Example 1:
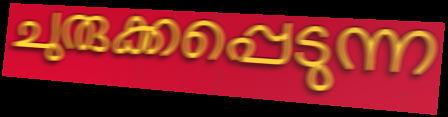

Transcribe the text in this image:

ചുരുക്കപ്പെടുന്ന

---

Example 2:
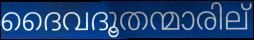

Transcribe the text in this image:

ദൈവദൂതന്മാരില്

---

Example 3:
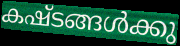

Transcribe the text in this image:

കഷ്ടങ്ങൾക്കു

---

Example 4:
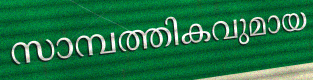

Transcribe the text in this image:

സാമ്പത്തികവുമായ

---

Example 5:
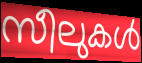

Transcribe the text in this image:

സീലുകൾ